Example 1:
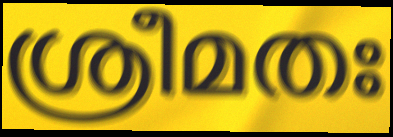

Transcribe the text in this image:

ശ്രീമതഃ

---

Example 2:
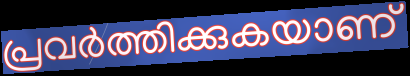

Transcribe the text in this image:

പ്രവർത്തിക്കുകയാണ്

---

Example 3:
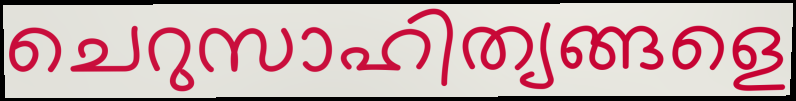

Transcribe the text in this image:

ചെറുസാഹിത്യങ്ങളെ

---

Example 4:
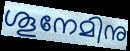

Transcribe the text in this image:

ശൂനേമിനു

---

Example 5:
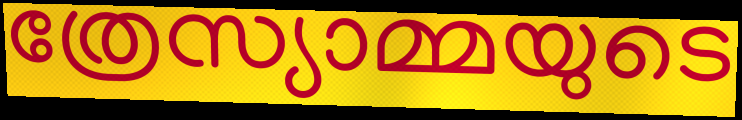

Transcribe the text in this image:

ത്രേസ്യാമ്മയുടെ